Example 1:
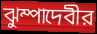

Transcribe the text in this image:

ঝুম্পাদেবীর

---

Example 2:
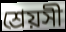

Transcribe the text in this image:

শ্রেয়সী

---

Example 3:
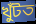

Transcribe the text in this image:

খুঁটত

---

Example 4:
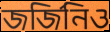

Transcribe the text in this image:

জর্জিনিও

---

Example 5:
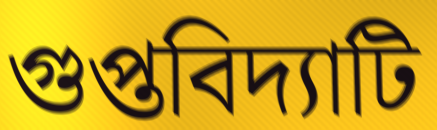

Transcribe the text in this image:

গুপ্তবিদ্যাটি